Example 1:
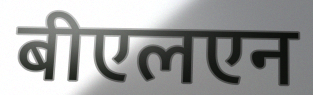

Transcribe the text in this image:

बीएलएन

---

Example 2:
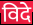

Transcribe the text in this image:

विदे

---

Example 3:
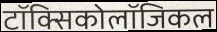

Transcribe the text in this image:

टॉक्सिकोलॉजिकल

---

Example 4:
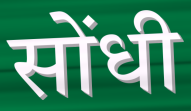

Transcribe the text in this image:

सोंधी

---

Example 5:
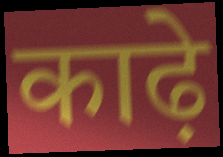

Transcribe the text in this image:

काढ़े